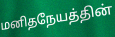
மனிதநேயத்தின்